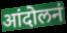
आंदोलनं